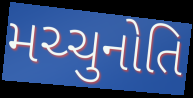
મચ્ચુનોતિ